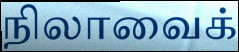
நிலாவைக்